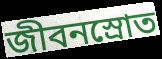
জীবনস্রোত